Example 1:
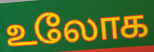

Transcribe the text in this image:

உலோக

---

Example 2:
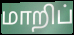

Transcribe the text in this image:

மாறிப்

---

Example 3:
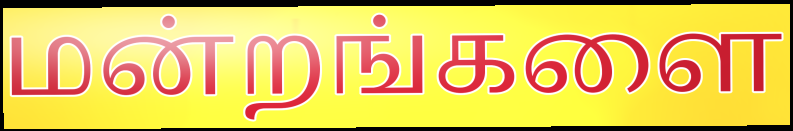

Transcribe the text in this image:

மன்றங்களை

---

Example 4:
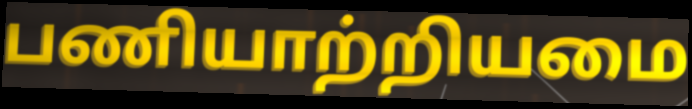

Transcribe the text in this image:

பணியாற்றியமை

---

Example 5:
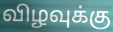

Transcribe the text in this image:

விழவுக்கு